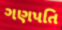
ગણપતિ